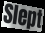
Slept